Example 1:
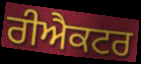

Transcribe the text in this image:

ਰੀਐਕਟਰ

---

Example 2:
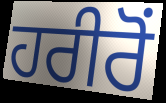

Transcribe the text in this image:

ਹਰੀਰੋਂ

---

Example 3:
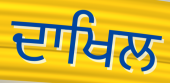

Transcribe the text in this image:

ਦਾਖਿਲ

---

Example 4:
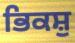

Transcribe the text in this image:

ਭਿਕਸ਼ੁ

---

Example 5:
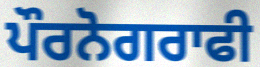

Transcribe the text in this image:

ਪੌਰਨੋਗਰਾਫੀ